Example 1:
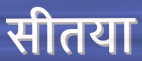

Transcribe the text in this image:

सीतया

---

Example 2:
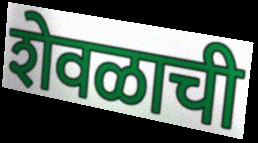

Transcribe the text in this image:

शेवळाची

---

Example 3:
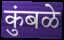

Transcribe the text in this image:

कुंबळे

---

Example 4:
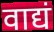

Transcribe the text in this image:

वाद्यं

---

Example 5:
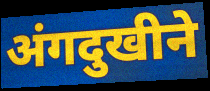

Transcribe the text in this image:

अंगदुखीने